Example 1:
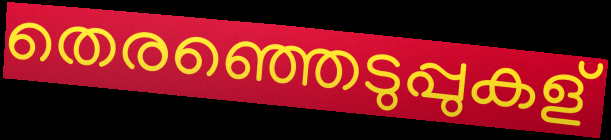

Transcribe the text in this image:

തെരഞ്ഞെടുപ്പുകള്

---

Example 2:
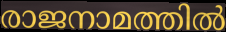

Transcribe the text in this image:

രാജനാമത്തിൽ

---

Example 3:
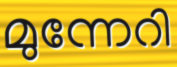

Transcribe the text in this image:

മുന്നേറി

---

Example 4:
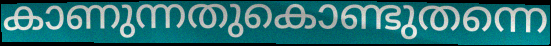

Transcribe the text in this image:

കാണുന്നതുകൊണ്ടുതന്നെ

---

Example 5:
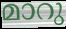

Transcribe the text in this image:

മാറു